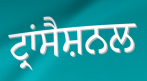
ਟ੍ਰਾਂਸੈਸ਼ਨਲ